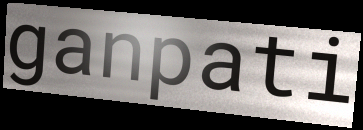
ganpati